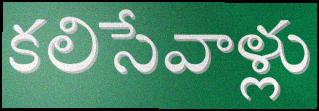
కలిసేవాళ్లు